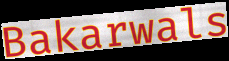
Bakarwals